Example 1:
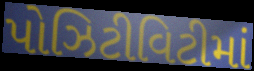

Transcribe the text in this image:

પોઝિટીવિટીમાં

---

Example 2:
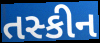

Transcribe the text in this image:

તસ્કીન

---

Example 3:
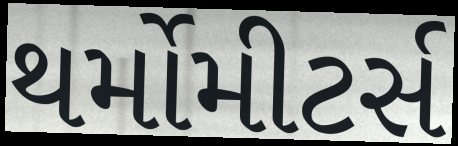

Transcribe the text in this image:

થર્મોમીટર્સ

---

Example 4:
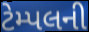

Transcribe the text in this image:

ટેમ્પલની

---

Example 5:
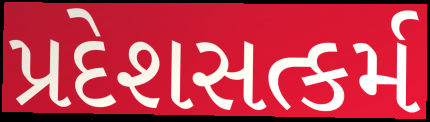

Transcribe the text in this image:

પ્રદેશસત્કર્મ